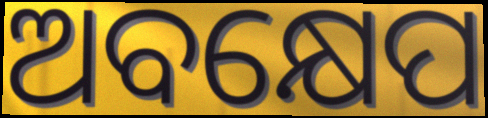
ଅବକ୍ଷେପ